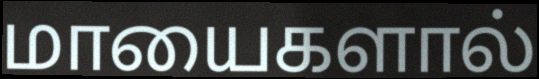
மாயைகளால்